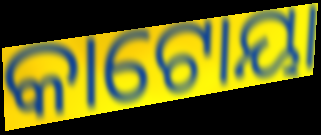
କାଟୋୟା